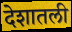
देशातली